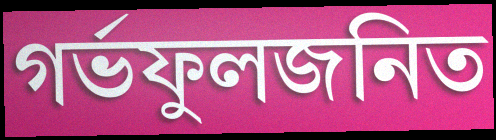
গর্ভফুলজনিত